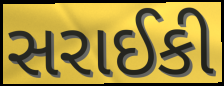
સરાઈકી